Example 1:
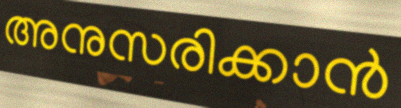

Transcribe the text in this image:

അനുസരിക്കാൻ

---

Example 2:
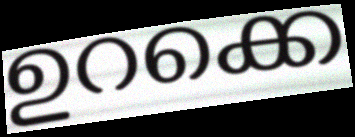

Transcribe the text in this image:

ഉറക്കെ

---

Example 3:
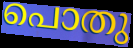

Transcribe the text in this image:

പൊതു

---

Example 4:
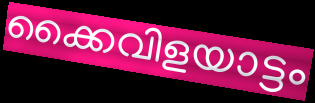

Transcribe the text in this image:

ക്കൈവിളയാട്ടം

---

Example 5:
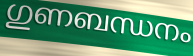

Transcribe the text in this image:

ഗുണബന്ധനം